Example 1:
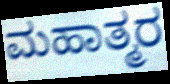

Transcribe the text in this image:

ಮಹಾತ್ಮರ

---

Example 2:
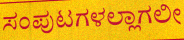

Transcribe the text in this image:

ಸಂಪುಟಗಳಲ್ಲಾಗಲೀ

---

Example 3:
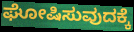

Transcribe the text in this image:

ಘೋಷಿಸುವುದಕ್ಕೆ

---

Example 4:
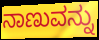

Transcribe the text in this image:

ನಾಣುವನ್ನು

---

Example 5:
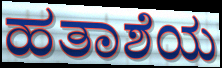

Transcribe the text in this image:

ಹತಾಶೆಯ